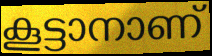
കൂട്ടാനാണ്